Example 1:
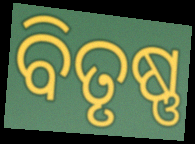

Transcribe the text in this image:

ବିତୃଷ୍ଣ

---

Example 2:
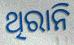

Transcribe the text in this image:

ଥିରାନି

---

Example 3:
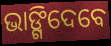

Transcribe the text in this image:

ଭାଙ୍ଗିଦେବେ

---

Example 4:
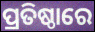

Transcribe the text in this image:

ପ୍ରତିଷ୍ଠାରେ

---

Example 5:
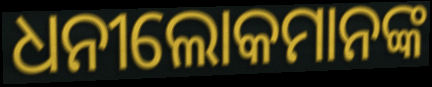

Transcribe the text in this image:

ଧନୀଲୋକମାନଙ୍କ